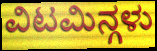
ವಿಟಮಿನ್ಗಳು